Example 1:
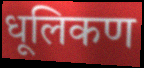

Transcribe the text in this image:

धूलिकण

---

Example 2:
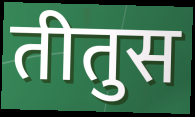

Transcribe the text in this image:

तीतुस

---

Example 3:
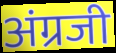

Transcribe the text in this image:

अंग्रजी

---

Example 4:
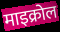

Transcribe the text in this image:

माइक्रोल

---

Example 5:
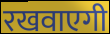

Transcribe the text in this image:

रखवाएगी